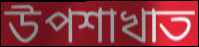
উপশাখাত